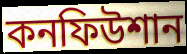
কনফিউশান